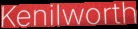
Kenilworth